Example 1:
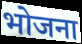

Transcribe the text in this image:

भोजना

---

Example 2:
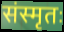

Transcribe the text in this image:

संस्मृतः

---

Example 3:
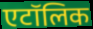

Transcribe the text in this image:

एटॉलिक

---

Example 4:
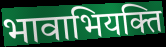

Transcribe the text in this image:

भावाभियक्ति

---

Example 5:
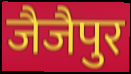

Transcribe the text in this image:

जैजैपुर